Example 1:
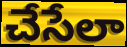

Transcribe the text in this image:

చేసేలా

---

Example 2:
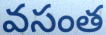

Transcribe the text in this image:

వసంత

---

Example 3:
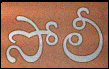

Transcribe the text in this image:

సోలీ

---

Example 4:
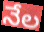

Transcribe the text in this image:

నేల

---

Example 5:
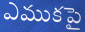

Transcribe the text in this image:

ఎముకపై